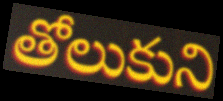
తోలుకుని